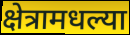
क्षेत्रामधल्या